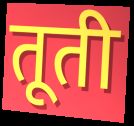
तूती